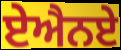
ਏਐਨਏ